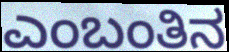
ಎಂಬಂತಿನ